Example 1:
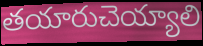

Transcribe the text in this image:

తయారుచెయ్యాలి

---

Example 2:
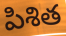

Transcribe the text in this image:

పిశిత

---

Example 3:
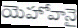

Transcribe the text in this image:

యెహోవానై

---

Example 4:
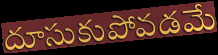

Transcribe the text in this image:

దూసుకుపోవడమే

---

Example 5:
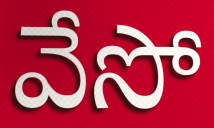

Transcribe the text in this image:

వేసో